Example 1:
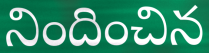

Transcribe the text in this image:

నిందించిన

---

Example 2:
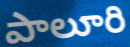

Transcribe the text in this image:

పాలూరి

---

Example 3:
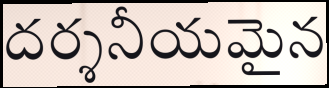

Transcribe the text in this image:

దర్శనీయమైన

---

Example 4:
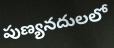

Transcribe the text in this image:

పుణ్యనదులలో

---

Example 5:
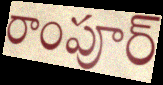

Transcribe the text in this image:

రాంపూర్